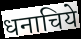
धनाचिये